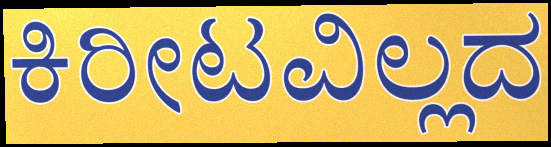
ಕಿರೀಟವಿಲ್ಲದ